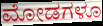
ಮೋಡಗಳೂ